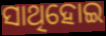
ସାଥିହୋଇ